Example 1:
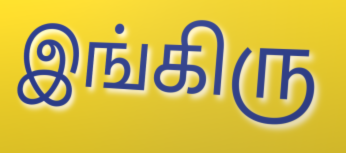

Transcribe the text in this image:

இங்கிரு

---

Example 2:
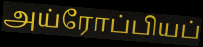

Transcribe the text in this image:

அய்ரோப்பியப்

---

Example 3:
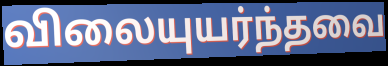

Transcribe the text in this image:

விலையுயர்ந்தவை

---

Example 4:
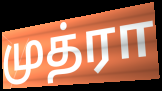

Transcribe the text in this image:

முத்ரா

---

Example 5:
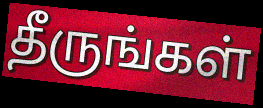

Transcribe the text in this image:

தீருங்கள்